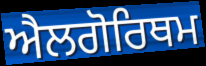
ਐਲਗੋਰਿਥਮ